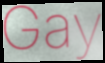
Gay